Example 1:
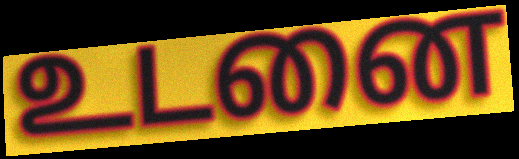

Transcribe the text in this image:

உடனை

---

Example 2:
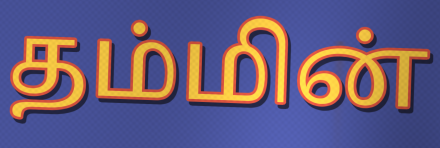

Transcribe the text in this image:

தம்மின்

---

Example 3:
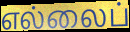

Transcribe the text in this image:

எல்லைப்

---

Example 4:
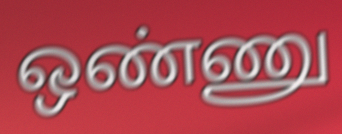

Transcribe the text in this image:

ஒண்ணு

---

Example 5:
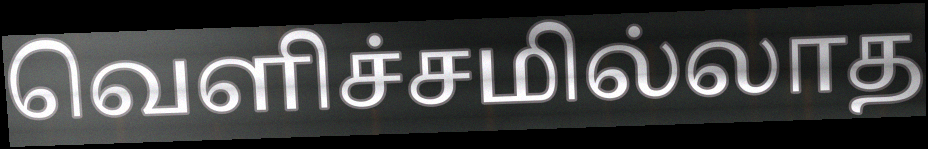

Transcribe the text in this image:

வெளிச்சமில்லாத